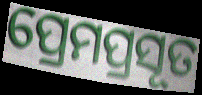
ପ୍ରେମପ୍ରସୂତ